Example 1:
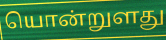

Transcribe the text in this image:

யொன்றுளது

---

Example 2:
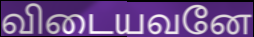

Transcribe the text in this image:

விடையவனே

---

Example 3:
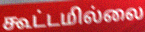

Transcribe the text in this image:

கூட்டமில்லை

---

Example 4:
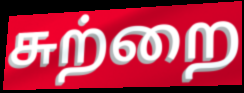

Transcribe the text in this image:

சுற்றை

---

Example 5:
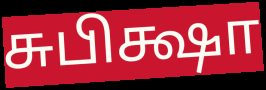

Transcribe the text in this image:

சுபிக்ஷா